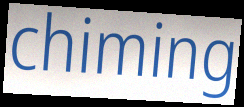
chiming